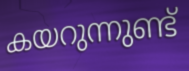
കയറുന്നുണ്ട്